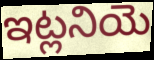
ఇట్లనియె